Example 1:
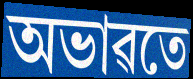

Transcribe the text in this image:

অভাৱতে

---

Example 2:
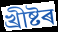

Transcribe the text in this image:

খ্ৰীষ্টৰ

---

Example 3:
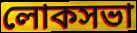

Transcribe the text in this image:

লোকসভা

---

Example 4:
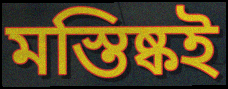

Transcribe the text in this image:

মস্তিষ্কই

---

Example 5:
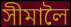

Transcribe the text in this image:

সীমালৈ